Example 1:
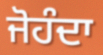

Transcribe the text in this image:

ਜੋਹੰਦਾ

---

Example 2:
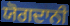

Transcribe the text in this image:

ਯੋਗਦਾਨੀ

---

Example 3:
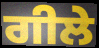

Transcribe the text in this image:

ਗੀਲੇ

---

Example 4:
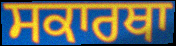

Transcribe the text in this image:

ਸਕਾਰਥਾ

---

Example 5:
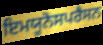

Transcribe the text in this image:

ਇਮਯੂਨੋਸਪਰੈਸਨ